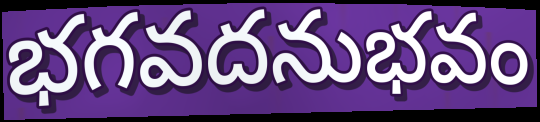
భగవదనుభవం